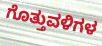
ಗೊತ್ತುವಳಿಗಳ